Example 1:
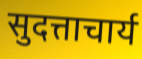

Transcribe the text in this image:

सुदत्ताचार्य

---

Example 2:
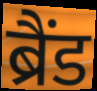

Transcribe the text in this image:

ब्रैंड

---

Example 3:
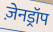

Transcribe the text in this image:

ज़ेनड्रॉप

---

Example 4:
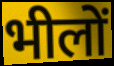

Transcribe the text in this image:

भीलों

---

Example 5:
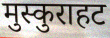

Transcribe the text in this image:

मुस्कुराहट